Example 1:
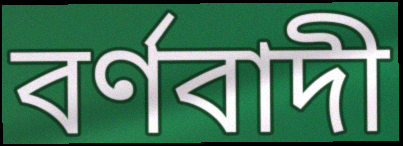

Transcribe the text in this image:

বর্ণবাদী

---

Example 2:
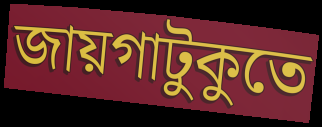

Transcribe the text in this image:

জায়গাটুকুতে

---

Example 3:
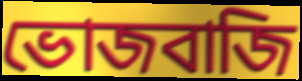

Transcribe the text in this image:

ভোজবাজি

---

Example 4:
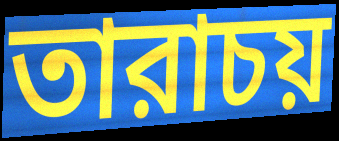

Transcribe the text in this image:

তারাচয়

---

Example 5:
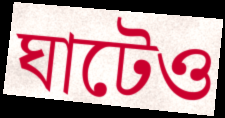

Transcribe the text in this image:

ঘাটেও